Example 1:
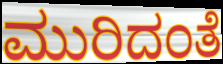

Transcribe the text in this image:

ಮುರಿದಂತೆ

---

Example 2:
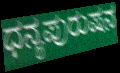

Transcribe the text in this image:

ಧನ್ಯಪುರುಷನ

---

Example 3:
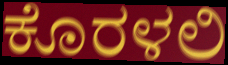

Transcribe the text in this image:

ಕೊರಳಲಿ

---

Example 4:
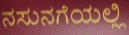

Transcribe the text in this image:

ನಸುನಗೆಯಲ್ಲಿ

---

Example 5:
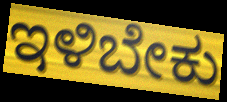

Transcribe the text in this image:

ಇಳಿಬೇಕು